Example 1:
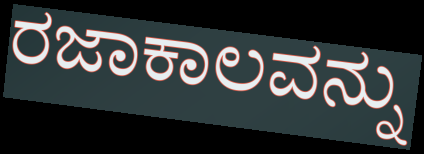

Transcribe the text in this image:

ರಜಾಕಾಲವನ್ನು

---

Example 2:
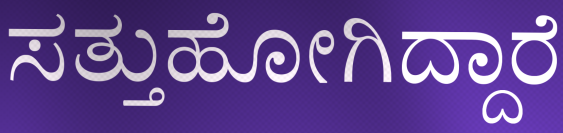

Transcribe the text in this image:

ಸತ್ತುಹೋಗಿದ್ದಾರೆ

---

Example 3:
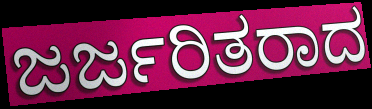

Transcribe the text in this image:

ಜರ್ಜರಿತರಾದ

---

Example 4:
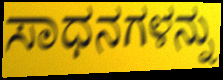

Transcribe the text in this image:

ಸಾಧನಗಳನ್ನು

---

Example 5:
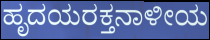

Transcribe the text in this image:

ಹೃದಯರಕ್ತನಾಳೀಯ